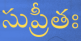
సుప్రీతః